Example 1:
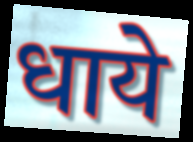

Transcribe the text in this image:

धाये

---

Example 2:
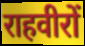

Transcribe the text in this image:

राहवीरों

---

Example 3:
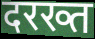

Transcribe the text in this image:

दरख्त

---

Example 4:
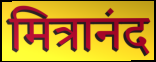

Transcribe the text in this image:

मित्रानंद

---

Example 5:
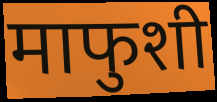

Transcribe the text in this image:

माफुशी